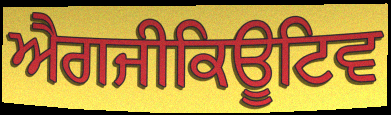
ਐਗਜੀਕਿਊਟਿਵ